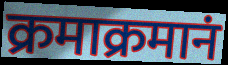
क्रमाक्रमानं